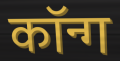
कॉन्ग